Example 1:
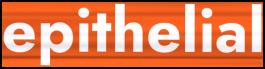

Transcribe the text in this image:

epithelial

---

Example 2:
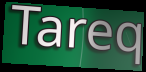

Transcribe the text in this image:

Tareq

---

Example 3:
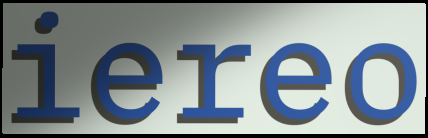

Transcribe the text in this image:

iereo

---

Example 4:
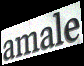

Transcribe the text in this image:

amale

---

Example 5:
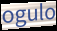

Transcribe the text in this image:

ogulo